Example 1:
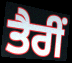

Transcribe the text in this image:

ਤੈਰੀਂ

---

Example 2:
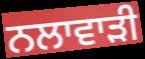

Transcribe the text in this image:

ਨਲਾਵਾੜੀ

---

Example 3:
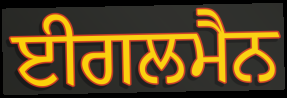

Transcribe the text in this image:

ਈਗਲਮੈਨ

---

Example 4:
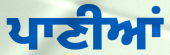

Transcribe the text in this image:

ਪਾਣੀਆਂ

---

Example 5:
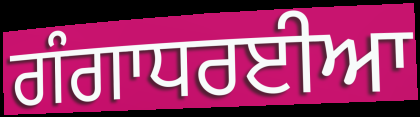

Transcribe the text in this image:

ਗੰਗਾਧਰਈਆ